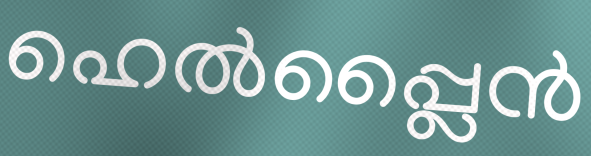
ഹെൽപ്പ്ലൈൻ